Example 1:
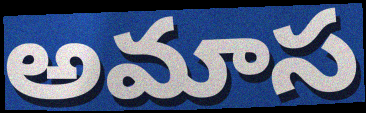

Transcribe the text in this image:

అమాస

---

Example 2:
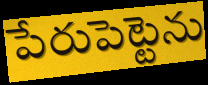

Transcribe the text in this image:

పేరుపెట్టెను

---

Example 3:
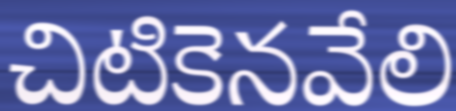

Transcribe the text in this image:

చిటికెనవేలి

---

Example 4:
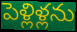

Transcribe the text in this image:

పెళ్లిళ్లను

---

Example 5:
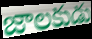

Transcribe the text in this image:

జాలకుడు